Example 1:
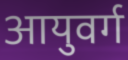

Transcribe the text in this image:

आयुवर्ग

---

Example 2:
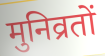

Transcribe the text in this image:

मुनिव्रतों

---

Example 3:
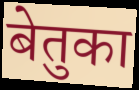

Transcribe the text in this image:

बेतुका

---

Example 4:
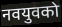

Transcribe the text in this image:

नवयुवको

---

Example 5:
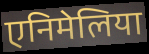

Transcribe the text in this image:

एनिमेलिया